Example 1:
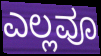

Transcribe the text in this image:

ಎಲ್ಲವೂ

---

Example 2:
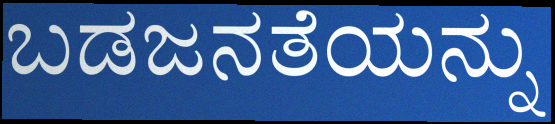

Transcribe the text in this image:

ಬಡಜನತೆಯನ್ನು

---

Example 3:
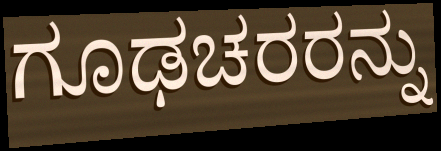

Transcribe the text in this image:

ಗೂಢಚರರನ್ನು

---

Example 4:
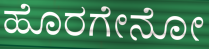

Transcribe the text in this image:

ಹೊರಗೇನೋ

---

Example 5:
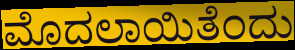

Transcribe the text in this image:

ಮೊದಲಾಯಿತೆಂದು